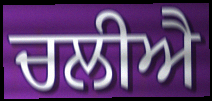
ਚਲੀਐ